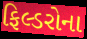
ફિલ્ડરોના